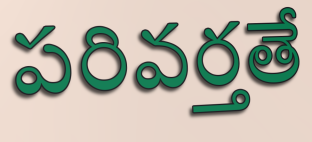
పరివర్తతే